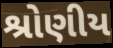
શ્રોણીય